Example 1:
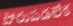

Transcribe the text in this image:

పోరుపడలేక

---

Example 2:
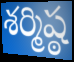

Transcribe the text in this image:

శర్మిష్ఠ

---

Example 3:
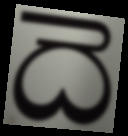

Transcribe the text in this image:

దె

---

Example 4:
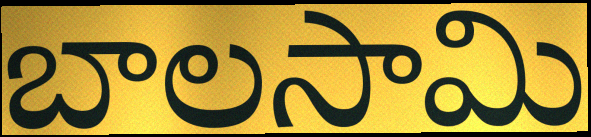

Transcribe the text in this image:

బాలసామి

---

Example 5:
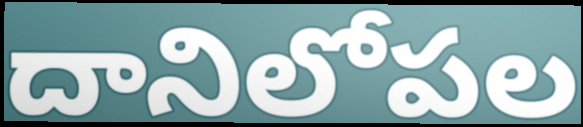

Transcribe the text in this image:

దానిలోపల